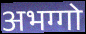
अभग्गो